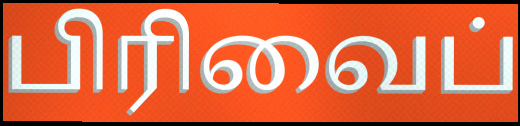
பிரிவைப்